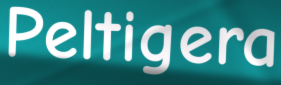
Peltigera